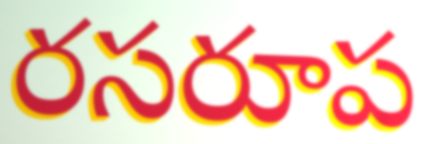
రసరూప